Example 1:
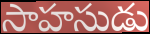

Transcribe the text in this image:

సాహసుడు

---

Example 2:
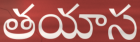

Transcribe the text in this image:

తయాస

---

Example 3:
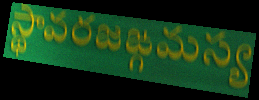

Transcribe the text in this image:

స్థావరజఙ్గమస్య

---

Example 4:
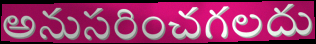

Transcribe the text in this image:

అనుసరించగలదు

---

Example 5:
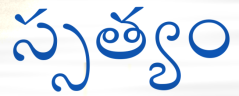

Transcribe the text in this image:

స్సత్యం